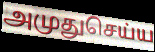
அமுதுசெய்ய